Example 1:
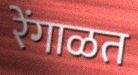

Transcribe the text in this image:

रेंगाळत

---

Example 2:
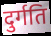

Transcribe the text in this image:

दुर्गति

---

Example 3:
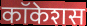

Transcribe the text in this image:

कॉकेशस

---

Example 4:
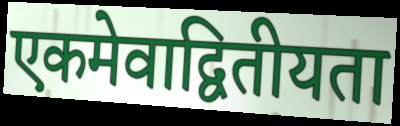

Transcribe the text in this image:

एकमेवाद्वितीयता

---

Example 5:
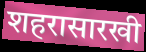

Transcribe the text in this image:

शहरासारखी